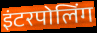
इंटरपोलिंग